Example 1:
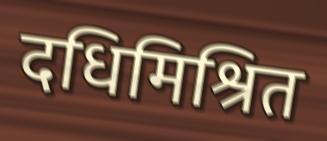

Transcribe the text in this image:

दधिमिश्रित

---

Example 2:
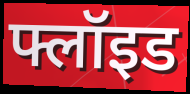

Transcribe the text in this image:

फ्लॉइड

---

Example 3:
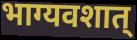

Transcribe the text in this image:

भाग्यवशात्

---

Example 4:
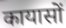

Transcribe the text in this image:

कायासों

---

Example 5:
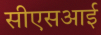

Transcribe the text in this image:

सीएसआई